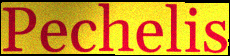
Pechelis